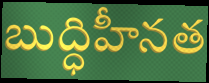
బుద్ధిహీనత